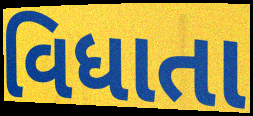
વિધાતા